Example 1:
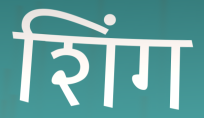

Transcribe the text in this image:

शिंग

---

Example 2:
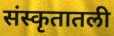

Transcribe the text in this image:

संस्कृतातली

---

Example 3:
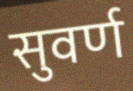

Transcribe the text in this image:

सुवर्ण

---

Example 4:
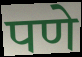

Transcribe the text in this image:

पणे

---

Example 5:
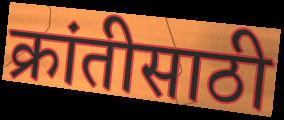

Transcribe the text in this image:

क्रांतीसाठी